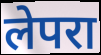
लेपरा